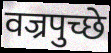
वज्रपुच्छे